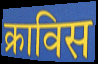
क्राविस